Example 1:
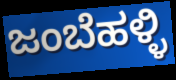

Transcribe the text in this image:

ಜಂಬೆಹಳ್ಳಿ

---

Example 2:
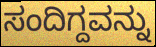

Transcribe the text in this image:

ಸಂದಿಗ್ದವನ್ನು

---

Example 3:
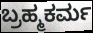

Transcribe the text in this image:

ಬ್ರಹ್ಮಕರ್ಮ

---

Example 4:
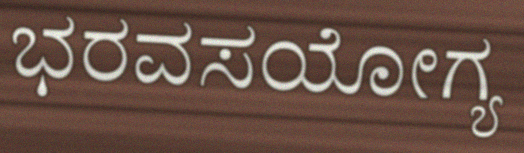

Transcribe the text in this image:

ಭರವಸಯೋಗ್ಯ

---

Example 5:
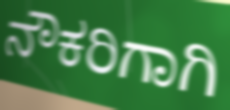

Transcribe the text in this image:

ನೌಕರಿಗಾಗಿ